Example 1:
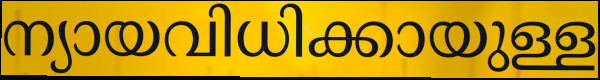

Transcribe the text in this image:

ന്യായവിധിക്കായുള്ള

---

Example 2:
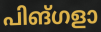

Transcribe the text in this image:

പിങ്ഗളാ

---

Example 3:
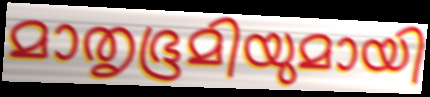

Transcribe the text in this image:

മാതൃഭൂമിയുമായി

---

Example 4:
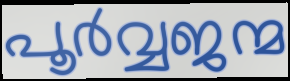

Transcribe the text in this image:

പൂർവ്വജന്മ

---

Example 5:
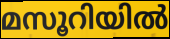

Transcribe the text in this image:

മസൂറിയിൽ